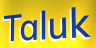
Taluk